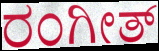
ರಂಗೀತ್